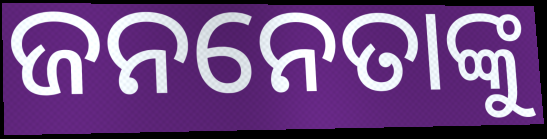
ଜନନେତାଙ୍କୁ